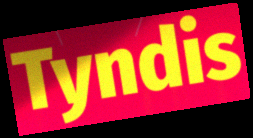
Tyndis